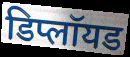
डिप्लॉयड